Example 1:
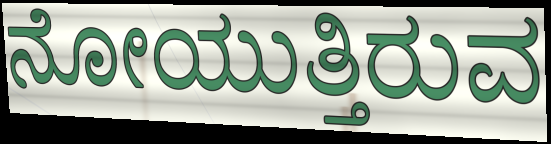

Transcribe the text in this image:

ನೋಯುತ್ತಿರುವ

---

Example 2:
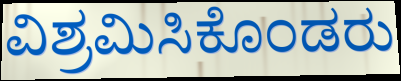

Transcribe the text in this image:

ವಿಶ್ರಮಿಸಿಕೊಂಡರು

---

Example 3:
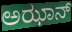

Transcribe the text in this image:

ಅಝಾನ್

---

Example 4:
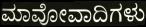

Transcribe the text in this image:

ಮಾವೋವಾದಿಗಳು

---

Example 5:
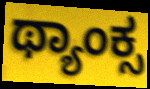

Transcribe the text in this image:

ಥ್ಯಾಂಕ್ಸ